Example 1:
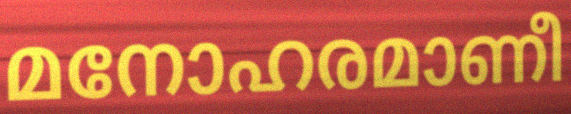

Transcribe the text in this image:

മനോഹരമാണീ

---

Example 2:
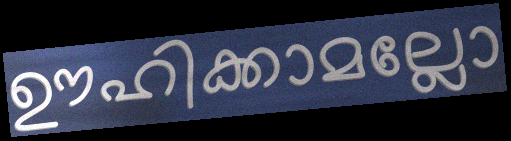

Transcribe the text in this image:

ഊഹിക്കാമല്ലോ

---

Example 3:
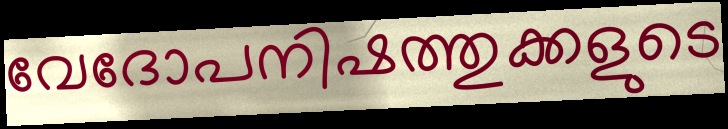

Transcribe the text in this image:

വേദോപനിഷത്തുക്കളുടെ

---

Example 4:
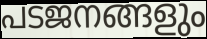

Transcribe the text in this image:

പടജനങ്ങളും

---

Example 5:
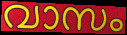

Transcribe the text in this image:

വാസം